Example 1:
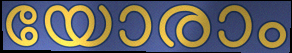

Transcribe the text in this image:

യോരാം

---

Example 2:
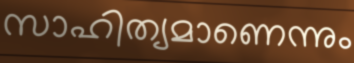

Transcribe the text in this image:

സാഹിത്യമാണെന്നും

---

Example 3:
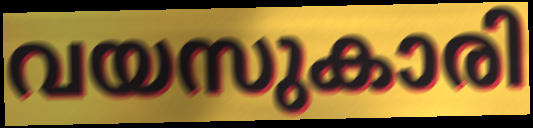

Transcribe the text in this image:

വയസുകാരി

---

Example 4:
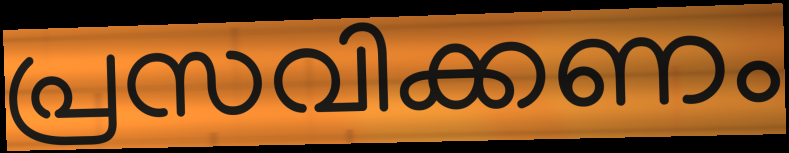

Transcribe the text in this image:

പ്രസവിക്കണം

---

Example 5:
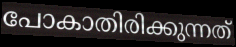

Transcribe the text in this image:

പോകാതിരിക്കുന്നത്